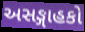
અસઙ્ગાહકો